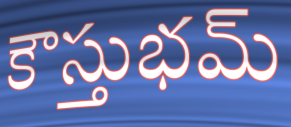
కౌస్తుభమ్